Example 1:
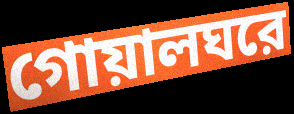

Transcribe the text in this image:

গোয়ালঘরে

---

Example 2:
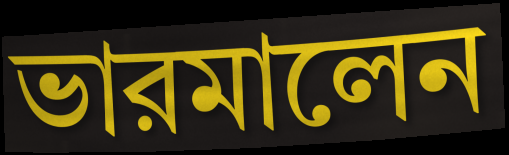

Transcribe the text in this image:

ভারমালেন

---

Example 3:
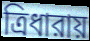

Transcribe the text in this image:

ত্রিধারায়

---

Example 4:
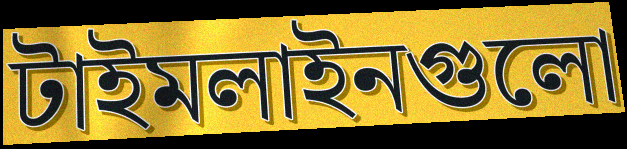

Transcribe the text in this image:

টাইমলাইনগুলো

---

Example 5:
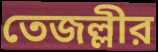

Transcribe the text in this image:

তেজল্লীর